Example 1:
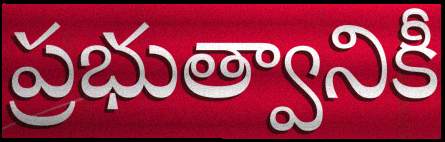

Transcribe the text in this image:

ప్రభుత్వానికీ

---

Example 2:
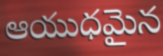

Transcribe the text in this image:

ఆయుధమైన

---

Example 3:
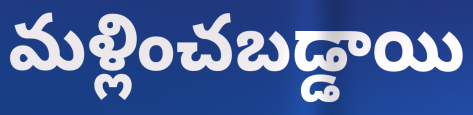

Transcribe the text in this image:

మళ్లించబడ్డాయి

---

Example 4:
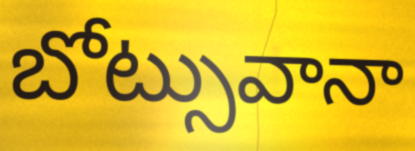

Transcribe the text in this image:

బోట్సువానా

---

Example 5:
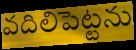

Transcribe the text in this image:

వదిలిపెట్టను